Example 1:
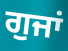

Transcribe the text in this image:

ਗੁਜਾਂ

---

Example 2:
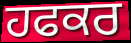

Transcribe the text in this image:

ਹਫਕਰ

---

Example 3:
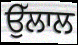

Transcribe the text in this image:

ਉੱਲਾਲ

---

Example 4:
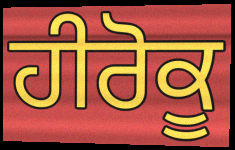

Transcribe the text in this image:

ਹੀਰੋਕੂ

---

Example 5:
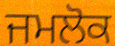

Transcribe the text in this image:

ਜਮਲੋਕ